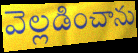
వెల్లడించాను